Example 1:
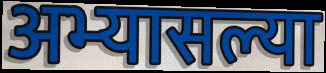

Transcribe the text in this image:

अभ्यासल्या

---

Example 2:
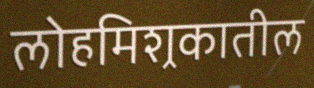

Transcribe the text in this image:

लोहमिश्रकातील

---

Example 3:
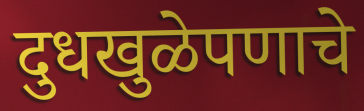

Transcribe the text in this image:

दुधखुळेपणाचे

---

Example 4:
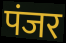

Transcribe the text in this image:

पंजर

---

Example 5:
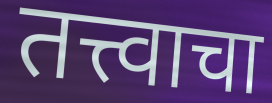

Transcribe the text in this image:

तत्त्वाचा